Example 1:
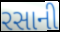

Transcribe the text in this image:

રસાની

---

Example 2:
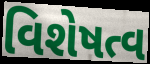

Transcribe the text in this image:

વિશેષત્વ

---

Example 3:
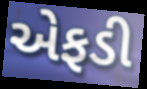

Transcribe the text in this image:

એફડી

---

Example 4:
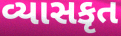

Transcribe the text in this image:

વ્યાસકૃત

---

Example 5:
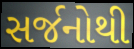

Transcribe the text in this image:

સર્જનોથી